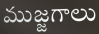
ముజ్జగాలు